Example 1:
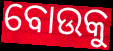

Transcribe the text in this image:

ବୋଉକୁ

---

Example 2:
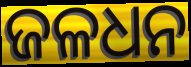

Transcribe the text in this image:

ଜଳଧନ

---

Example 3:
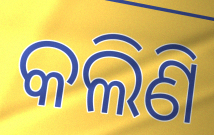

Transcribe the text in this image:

କଲିଣି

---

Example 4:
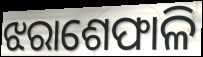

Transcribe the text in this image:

ଝରାଶେଫାଳି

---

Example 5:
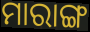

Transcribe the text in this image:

ମାରାଙ୍ଗ